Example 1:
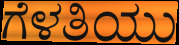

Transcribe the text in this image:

ಗೆಳತಿಯು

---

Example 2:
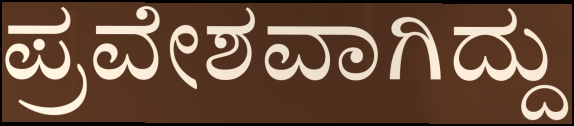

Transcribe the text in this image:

ಪ್ರವೇಶವಾಗಿದ್ದು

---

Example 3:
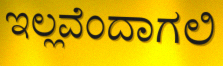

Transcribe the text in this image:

ಇಲ್ಲವೆಂದಾಗಲಿ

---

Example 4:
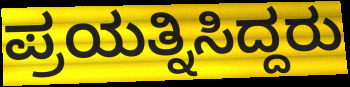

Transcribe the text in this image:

ಪ್ರಯತ್ನಿಸಿದ್ದರು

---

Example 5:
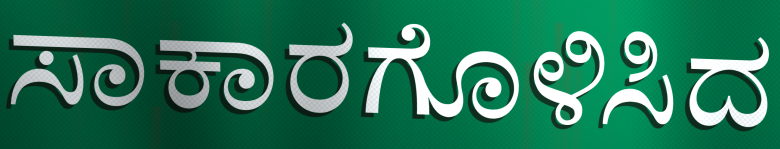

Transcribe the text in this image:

ಸಾಕಾರಗೊಳಿಸಿದ